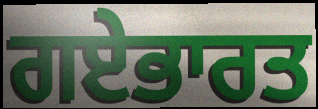
ਗਏਭਾਰਤ